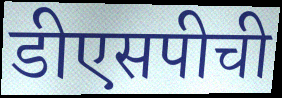
डीएसपीची